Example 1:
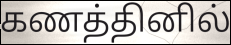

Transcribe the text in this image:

கணத்தினில்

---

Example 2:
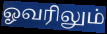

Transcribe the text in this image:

ஓவரிலும்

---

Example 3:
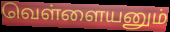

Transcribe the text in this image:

வெள்ளையனும்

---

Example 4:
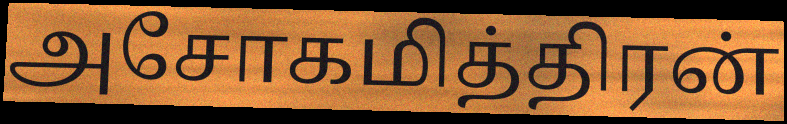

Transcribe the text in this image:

அசோகமித்திரன்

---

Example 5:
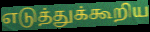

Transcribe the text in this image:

எடுத்துக்கூறிய